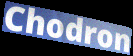
Chodron